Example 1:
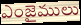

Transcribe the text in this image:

ఎంజైములు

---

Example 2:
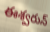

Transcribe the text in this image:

ఈశ్వరున్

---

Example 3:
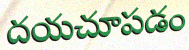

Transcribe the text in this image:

దయచూపడం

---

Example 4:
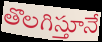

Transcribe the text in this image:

తొలగిస్తూనే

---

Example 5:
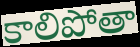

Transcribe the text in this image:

కాలిపోతా